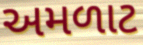
અમળાટ